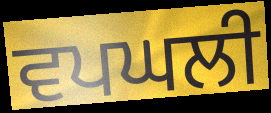
ਵਪਘਲੀ